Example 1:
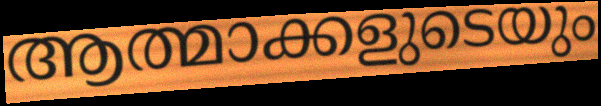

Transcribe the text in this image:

ആത്മാക്കളുടെയും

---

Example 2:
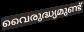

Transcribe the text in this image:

വൈരുദ്ധ്യമുണ്ട്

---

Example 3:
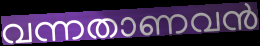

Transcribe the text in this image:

വന്നതാണവൻ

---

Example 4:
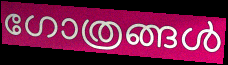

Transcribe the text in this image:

ഗോത്രങ്ങൾ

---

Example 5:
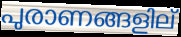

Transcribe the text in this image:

പുരാണങ്ങളില്